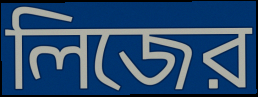
লিজের